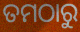
ତମଠାରୁ